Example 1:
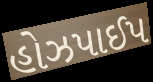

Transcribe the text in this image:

હોઝપાઈપ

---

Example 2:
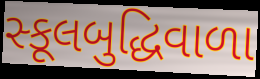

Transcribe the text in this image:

સ્કૂલબુદ્ધિવાળા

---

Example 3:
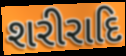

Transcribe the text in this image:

શરીરાદિ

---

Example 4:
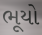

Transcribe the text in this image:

ભૂયો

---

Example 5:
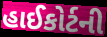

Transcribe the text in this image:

હાઈકોર્ટની